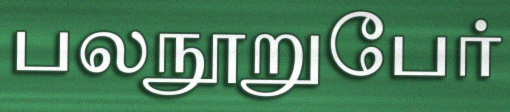
பலநூறுபேர்